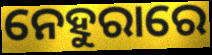
ନେହୁରାରେ